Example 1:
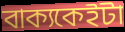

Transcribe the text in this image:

বাক্যকেইটা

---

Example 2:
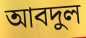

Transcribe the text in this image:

আবদুল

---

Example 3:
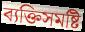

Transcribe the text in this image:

ব্যক্তিসমষ্টি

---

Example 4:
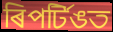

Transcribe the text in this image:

ৰিপৰ্টিঙত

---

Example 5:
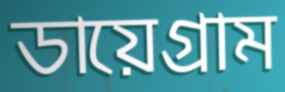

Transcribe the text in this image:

ডায়েগ্ৰাম